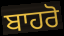
ਬਾਹਰੋ